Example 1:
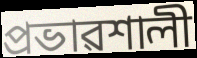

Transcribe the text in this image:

প্ৰভাৱশালী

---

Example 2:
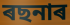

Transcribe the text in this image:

ৰছনাৰ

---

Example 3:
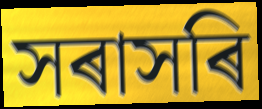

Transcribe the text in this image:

সৰাসৰি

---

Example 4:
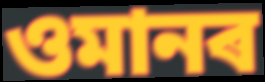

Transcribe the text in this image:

ওমানৰ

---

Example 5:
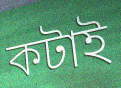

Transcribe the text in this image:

কটাই